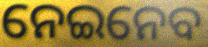
ନେଇନେବ